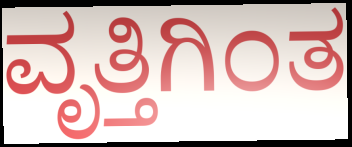
ವೃತ್ತಿಗಿಂತ